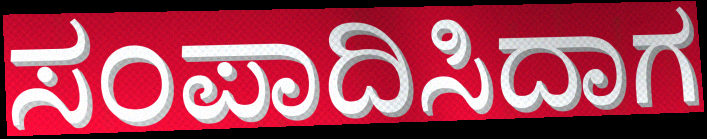
ಸಂಪಾದಿಸಿದಾಗ